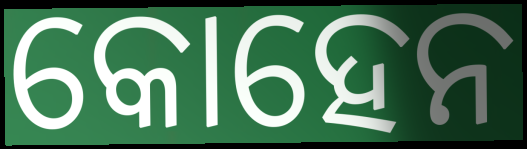
କୋହେନ